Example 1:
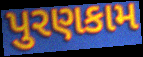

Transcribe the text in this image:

પુરણકામ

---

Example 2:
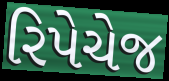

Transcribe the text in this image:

રિપેચેજ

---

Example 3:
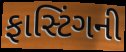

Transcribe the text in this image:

ફાસ્ટિંગની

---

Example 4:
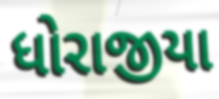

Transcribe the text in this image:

ધોરાજીયા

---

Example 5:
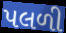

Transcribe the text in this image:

પલળી